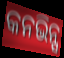
କନଭିନ୍ସ